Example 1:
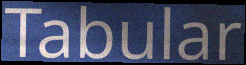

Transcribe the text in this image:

Tabular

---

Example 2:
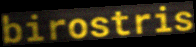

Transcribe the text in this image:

birostris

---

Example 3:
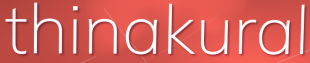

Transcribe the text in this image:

thinakural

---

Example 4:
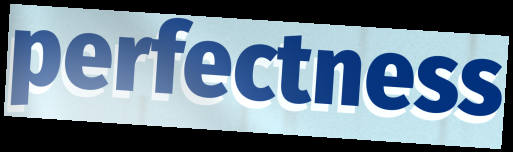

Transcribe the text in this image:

perfectness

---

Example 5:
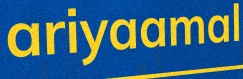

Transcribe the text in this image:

ariyaamal